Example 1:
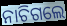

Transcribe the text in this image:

ନାଚିଗଲେ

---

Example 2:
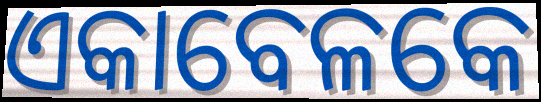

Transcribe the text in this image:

ଏକାବେଳକେ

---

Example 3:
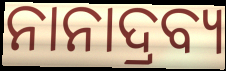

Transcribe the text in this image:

ନାନାଦ୍ରବ୍ୟ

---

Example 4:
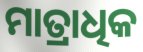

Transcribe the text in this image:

ମାତ୍ରାଧିକ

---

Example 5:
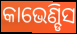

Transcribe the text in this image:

କାଭେଣ୍ଡିସ